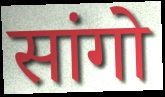
सांगो